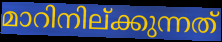
മാറിനില്ക്കുന്നത്